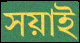
সয়াই